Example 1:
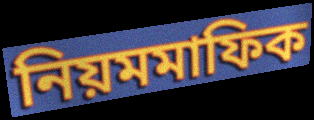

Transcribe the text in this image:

নিয়মমাফিক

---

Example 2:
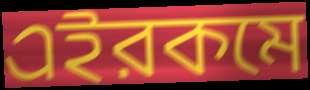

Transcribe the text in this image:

এইরকমে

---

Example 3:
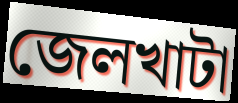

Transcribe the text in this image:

জেলখাটা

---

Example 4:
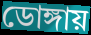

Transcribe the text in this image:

ডোঙ্গায়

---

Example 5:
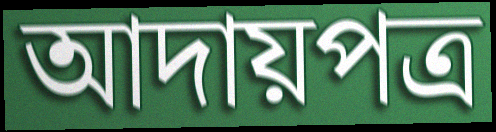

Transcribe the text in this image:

আদায়পত্র